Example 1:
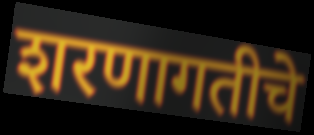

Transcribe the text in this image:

शरणागतीचे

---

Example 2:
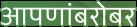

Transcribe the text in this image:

आपणांबरोबर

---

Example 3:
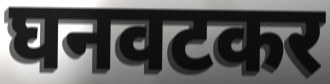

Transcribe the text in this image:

घनवटकर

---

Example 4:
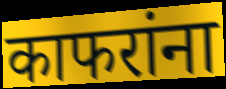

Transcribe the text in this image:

काफरांना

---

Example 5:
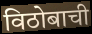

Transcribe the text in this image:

विठोबाची